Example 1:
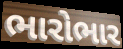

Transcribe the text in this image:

ભારોભાર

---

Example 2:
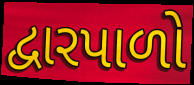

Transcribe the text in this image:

દ્વારપાળો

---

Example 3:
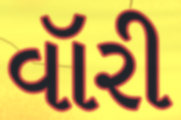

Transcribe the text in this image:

વૉરી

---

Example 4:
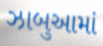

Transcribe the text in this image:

ઝાબુઆમાં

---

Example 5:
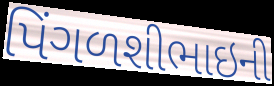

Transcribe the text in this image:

પિંગળશીભાઇની